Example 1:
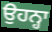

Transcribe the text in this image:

ਉਹਨ੍ਹਾ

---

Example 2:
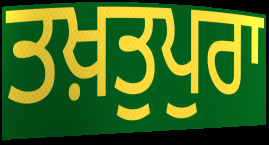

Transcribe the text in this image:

ਤਖ਼ਤੁਪੁਰਾ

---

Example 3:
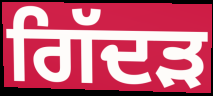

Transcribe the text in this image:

ਗਿੱਦਡ਼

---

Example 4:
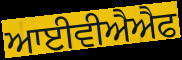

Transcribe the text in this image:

ਆਈਵੀਐਐਫ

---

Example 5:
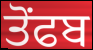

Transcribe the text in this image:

ਤੋਂਫਬ